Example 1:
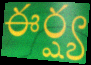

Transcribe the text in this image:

ఈర్ష్య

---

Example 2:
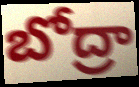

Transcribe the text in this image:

బోద్రా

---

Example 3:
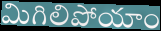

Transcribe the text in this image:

మిగిలిపోయాం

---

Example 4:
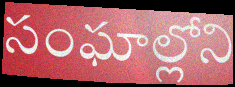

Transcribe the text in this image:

సంఘాల్లోని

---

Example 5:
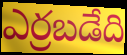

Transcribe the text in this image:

ఎర్రబడేది